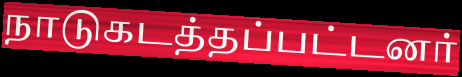
நாடுகடத்தப்பட்டனர்